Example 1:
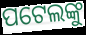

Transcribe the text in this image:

ପଟେଲଙ୍କୁ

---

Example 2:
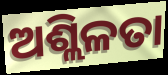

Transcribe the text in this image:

ଅଶ୍ଲିଳତା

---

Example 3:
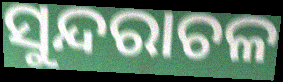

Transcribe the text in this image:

ସୁନ୍ଦରାଚଳ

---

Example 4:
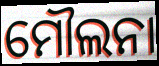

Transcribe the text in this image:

ମୌଲନା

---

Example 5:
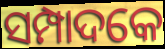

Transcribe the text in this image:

ସମ୍ପାଦକେ